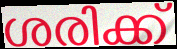
ശരിക്ക്